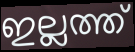
ഇല്ലത്ത്